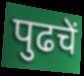
पुढचें